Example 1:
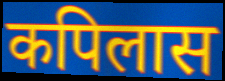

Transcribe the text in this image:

कपिलास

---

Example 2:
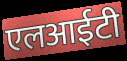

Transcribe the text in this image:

एलआईटी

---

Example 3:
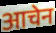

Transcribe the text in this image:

आचेन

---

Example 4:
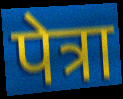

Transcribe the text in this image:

पेत्रा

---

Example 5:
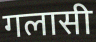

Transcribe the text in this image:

गलासी